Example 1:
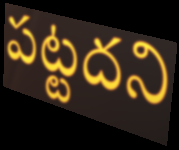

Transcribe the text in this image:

పట్టదని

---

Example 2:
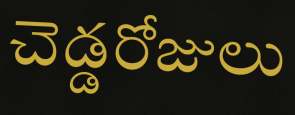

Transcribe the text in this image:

చెడ్డరోజులు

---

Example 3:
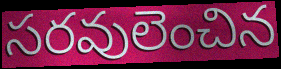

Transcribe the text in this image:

సరవులెంచిన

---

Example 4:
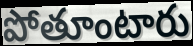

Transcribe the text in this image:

పోతూంటారు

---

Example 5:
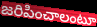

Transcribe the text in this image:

జరిపించాలంటూ